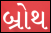
બ્રોથ